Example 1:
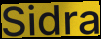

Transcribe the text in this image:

Sidra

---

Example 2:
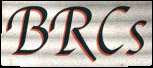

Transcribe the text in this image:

BRCs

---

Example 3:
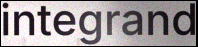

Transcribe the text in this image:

integrand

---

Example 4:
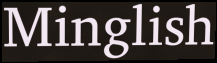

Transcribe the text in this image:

Minglish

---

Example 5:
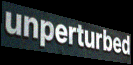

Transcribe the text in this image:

unperturbed